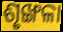
ଶୃଙ୍ଖଳା